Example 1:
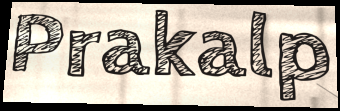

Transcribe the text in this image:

Prakalp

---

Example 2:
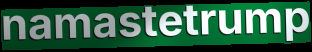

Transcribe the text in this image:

namastetrump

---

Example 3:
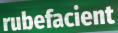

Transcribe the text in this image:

rubefacient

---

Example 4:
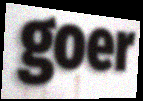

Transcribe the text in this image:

goer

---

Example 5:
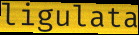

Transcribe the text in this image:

ligulata